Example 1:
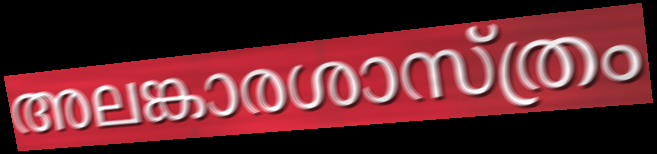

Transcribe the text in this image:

അലങ്കാരശാസ്ത്രം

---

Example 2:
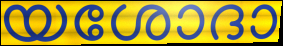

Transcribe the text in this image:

യശോദാ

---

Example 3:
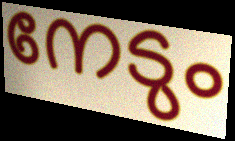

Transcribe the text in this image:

നേടും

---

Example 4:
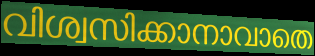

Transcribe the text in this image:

വിശ്വസിക്കാനാവാതെ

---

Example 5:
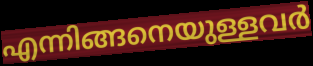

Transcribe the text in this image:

എന്നിങ്ങനെയുള്ളവർ